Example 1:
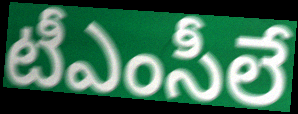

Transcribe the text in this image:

టీఎంసీలే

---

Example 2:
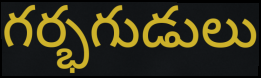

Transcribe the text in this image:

గర్భగుడులు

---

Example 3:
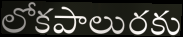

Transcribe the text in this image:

లోకపాలురకు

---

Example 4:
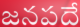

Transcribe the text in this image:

జనపదే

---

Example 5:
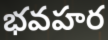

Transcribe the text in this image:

భవహర